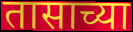
तासाच्या